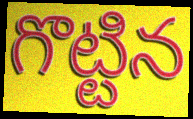
గొట్టిన